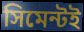
সিমেন্টই